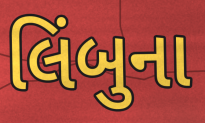
લિંબુના